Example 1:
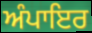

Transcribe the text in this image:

ਅੰਪਾਇਰ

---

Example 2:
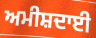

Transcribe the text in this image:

ਅਮੀਸ਼ਦਾਈ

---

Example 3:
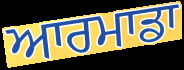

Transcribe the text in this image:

ਆਰਮਾਡਾ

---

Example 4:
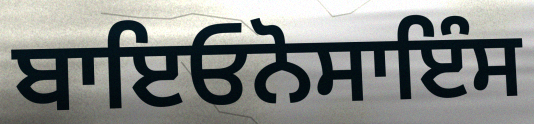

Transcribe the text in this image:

ਬਾਇਓਨੋਸਾਇੰਸ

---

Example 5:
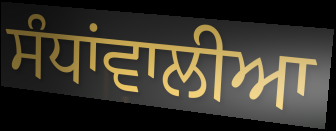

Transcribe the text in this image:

ਸੰਧਾਂਵਾਲੀਆ